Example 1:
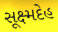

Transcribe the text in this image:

સૂક્ષ્મદેહ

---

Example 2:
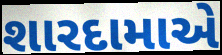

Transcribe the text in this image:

શારદામાએ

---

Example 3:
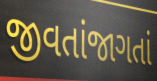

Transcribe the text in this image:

જીવતાંજાગતાં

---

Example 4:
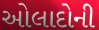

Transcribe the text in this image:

ઓલાદોની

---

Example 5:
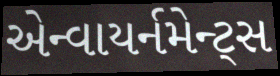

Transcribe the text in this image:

એન્વાયર્નમેન્ટ્સ